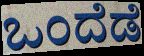
ಒಂದೆಡೆ